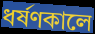
ধর্ষণকালে